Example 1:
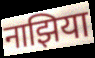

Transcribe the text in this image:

नाझिया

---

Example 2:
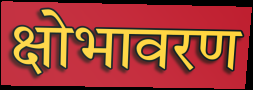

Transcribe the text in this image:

क्षोभावरण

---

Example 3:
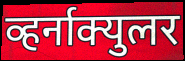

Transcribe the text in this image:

व्हर्नाक्युलर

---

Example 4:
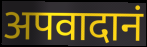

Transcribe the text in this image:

अपवादानं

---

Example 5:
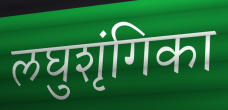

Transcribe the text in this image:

लघुशृंगिका